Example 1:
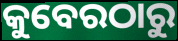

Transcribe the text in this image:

କୁବେରଠାରୁ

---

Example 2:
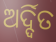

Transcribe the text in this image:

ଅର୍ଦ୍ଦିତ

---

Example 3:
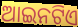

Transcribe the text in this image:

ଆଇନଟିଏ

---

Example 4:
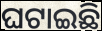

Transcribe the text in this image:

ଘଟାଇଛି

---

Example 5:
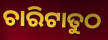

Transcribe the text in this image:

ଚାରିଟାତୁଠ